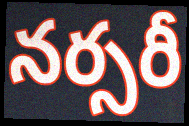
నర్సరీ